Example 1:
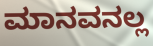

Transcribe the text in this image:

ಮಾನವನಲ್ಲ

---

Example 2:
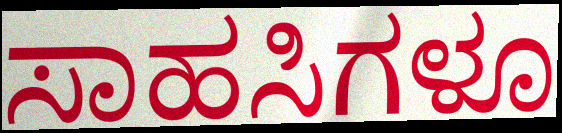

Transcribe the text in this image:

ಸಾಹಸಿಗಳೂ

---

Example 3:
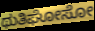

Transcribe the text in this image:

ಥುತಿಘೋಸೋ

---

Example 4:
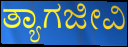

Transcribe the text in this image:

ತ್ಯಾಗಜೀವಿ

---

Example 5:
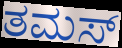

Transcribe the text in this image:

ತಮಸ್